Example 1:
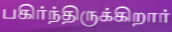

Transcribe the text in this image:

பகிர்ந்திருக்கிறார்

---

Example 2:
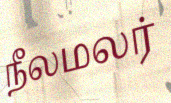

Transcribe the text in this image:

நீலமலர்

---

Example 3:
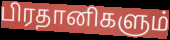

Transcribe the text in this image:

பிரதானிகளும்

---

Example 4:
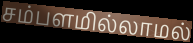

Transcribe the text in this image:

சம்பளமில்லாமல்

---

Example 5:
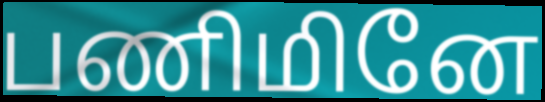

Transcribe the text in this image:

பணிமினே